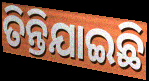
ତିନ୍ତିଯାଇଛି